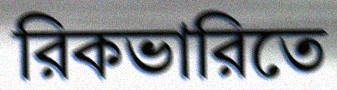
রিকভারিতে